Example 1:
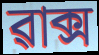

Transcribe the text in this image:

ৱাক্স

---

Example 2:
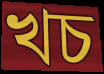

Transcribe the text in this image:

খচ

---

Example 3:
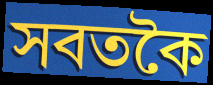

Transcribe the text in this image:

সবতকৈ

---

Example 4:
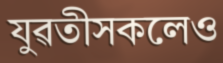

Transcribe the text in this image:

যুৱতীসকলেও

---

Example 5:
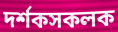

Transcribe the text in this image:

দৰ্শকসকলক